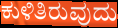
ಕುಳಿತಿರುವುದು